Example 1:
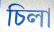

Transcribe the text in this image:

চিলা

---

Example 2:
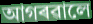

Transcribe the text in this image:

আগৰৱালে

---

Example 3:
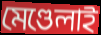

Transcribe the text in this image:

মেণ্ডেলাই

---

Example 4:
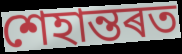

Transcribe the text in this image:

শেহান্তৰত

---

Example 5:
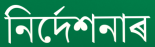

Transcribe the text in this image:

নিৰ্দেশনাৰ